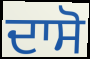
ਦਾਸੋ